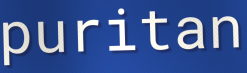
puritan